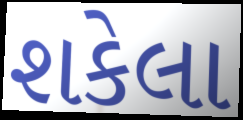
શકેલા